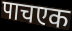
पाचएक